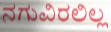
ನಗುವಿರಲಿಲ್ಲ